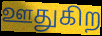
ஊதுகிற